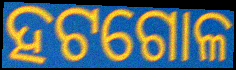
ହଟଗୋଳ